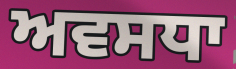
ਅਵਸਧਾ